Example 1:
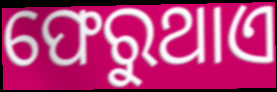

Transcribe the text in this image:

ଫେରୁଥାଏ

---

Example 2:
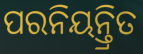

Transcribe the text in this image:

ପରନିୟନ୍ତ୍ରିତ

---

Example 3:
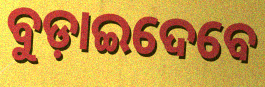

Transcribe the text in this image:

ବୁଡ଼ାଇଦେବେ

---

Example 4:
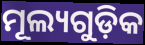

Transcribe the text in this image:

ମୂଲ୍ୟଗୁଡ଼ିକ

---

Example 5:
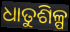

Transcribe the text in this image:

ଧାତୁଶିଳ୍ପ